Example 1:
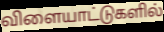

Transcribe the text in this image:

விளையாட்டுகளில்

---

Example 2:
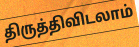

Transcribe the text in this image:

திருத்திவிடலாம்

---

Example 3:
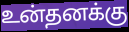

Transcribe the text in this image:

உன்தனக்கு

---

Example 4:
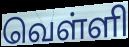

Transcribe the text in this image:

வெள்ளி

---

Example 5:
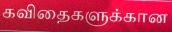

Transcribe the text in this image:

கவிதைகளுக்கான